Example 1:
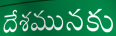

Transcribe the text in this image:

దేశమునకు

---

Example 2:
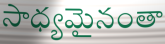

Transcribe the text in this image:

సాధ్యమైనంతా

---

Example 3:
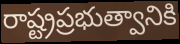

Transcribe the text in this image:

రాష్ట్రప్రభుత్వానికి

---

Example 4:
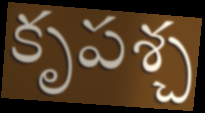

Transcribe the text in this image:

కృపశ్చ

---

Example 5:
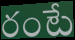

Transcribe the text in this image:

రంటే